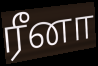
ரீனா